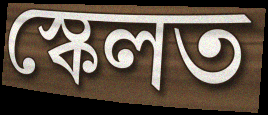
স্কেলত